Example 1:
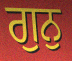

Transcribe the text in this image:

ਗੁਨੁ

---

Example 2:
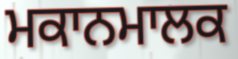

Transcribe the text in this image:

ਮਕਾਨਮਾਲਕ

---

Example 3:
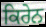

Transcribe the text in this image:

ਕਿਰੇਨ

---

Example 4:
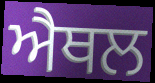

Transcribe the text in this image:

ਐਥਲ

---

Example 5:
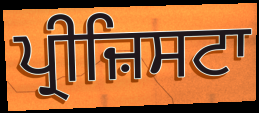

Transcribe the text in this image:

ਪ੍ਰੀਜ਼ਿਸਟਾ